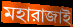
মহারাজাই